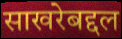
साखरेबद्दल